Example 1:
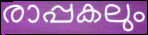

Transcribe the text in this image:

രാപ്പകലും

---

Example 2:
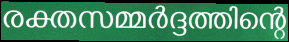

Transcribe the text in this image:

രക്തസമ്മർദ്ദത്തിന്റെ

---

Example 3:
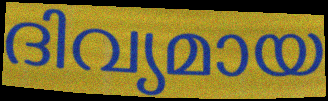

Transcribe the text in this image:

ദിവ്യമായ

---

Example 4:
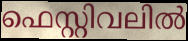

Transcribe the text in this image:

ഫെസ്റ്റിവലിൽ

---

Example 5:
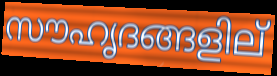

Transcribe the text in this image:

സൗഹൃദങ്ങളില്